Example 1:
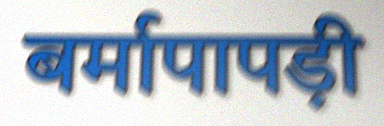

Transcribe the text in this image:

बर्मापापड़ी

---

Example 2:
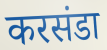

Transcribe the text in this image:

करसंडा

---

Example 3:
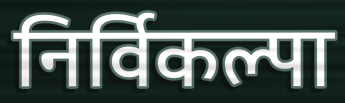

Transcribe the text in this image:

निर्विकल्पा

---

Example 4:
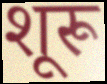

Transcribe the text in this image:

शूरू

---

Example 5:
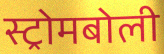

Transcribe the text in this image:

स्ट्रोमबोली